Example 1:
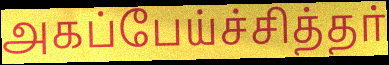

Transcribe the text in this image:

அகப்பேய்ச்சித்தர்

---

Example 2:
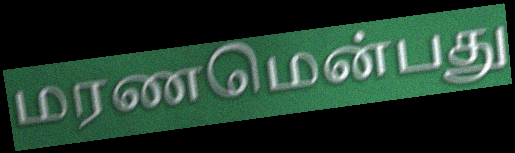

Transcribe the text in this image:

மரணமென்பது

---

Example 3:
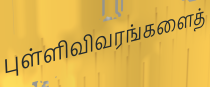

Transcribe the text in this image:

புள்ளிவிவரங்களைத்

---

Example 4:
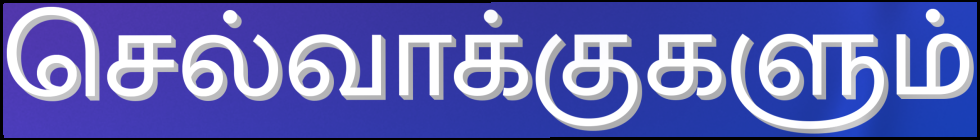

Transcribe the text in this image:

செல்வாக்குகளும்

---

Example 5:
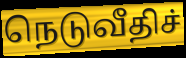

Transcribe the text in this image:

நெடுவீதிச்